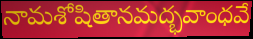
నామశోషితానమద్భవాంధవే